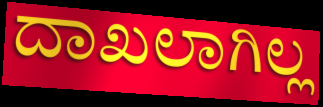
ದಾಖಲಾಗಿಲ್ಲ